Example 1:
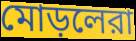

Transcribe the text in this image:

মোড়লেরা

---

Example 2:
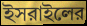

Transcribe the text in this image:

ইসরাইলের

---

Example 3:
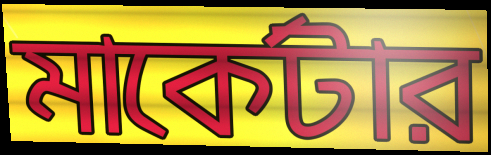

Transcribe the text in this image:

মার্কেটার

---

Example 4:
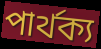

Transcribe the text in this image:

পার্থক্য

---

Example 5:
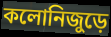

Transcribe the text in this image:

কলোনিজুড়ে